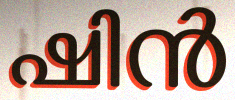
ഷിൻ